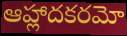
ఆహ్లాదకరమో